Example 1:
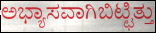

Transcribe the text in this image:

ಅಭ್ಯಾಸವಾಗಿಬಿಟ್ಟಿತ್ತು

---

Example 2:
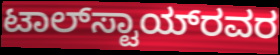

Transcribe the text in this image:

ಟಾಲ್‌ಸ್ಟಾಯ್‌ರವರ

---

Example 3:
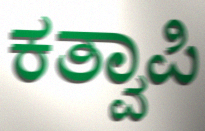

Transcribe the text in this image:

ಕತ್ವಾಪಿ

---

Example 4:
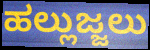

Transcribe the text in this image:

ಹಲ್ಲುಜ್ಜಲು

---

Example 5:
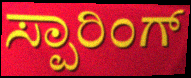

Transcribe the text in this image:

ಸ್ಪಾರಿಂಗ್